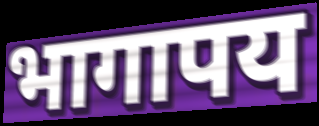
भागापय